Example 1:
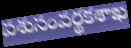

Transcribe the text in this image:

పశుసంవర్థకశాఖ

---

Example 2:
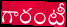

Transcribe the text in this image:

గారంటీ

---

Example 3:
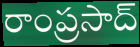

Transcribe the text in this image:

రాంప్రసాద్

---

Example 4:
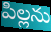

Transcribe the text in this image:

పిల్లను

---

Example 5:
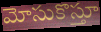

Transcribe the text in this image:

మోసుకొస్తూ